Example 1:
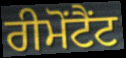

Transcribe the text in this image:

ਰੀਮੋਂਟੈਂਟ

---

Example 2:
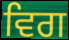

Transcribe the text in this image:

ਵਿਗ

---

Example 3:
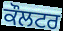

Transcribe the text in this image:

ਕੌਲਟਰ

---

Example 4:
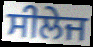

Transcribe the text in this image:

ਸੀਲੇਜ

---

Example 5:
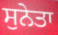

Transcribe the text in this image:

ਸੁਨੇਤਾ